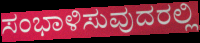
ಸಂಭಾಳಿಸುವುದರಲ್ಲಿ